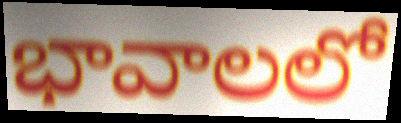
భావాలలో